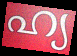
ഹ്യ